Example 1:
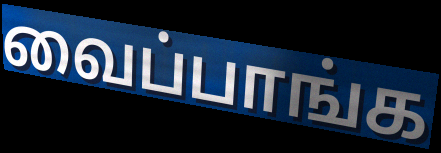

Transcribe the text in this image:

வைப்பாங்க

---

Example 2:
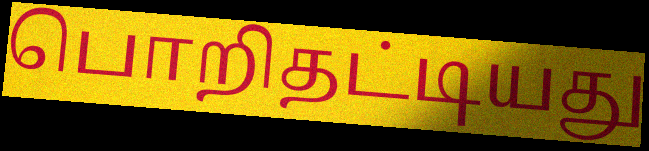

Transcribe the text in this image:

பொறிதட்டியது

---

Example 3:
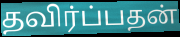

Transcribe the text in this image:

தவிர்ப்பதன்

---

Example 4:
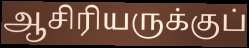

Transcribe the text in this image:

ஆசிரியருக்குப்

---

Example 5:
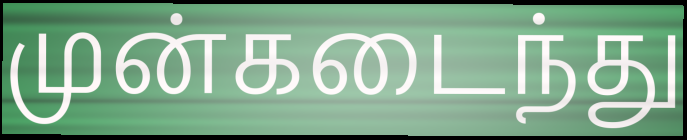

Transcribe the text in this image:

முன்கடைந்து